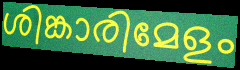
ശിങ്കാരിമേളം